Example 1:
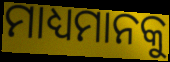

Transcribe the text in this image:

ମାଧ୍ଯମାନକୁ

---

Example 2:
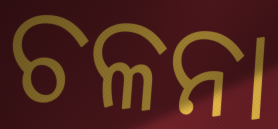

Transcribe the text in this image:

ଚଳନା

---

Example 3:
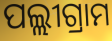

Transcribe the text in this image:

ପଲ୍ଲୀଗ୍ରାମ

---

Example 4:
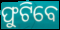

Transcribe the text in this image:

ଫୁଟିବେ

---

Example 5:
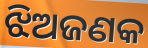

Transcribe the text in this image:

ଝିଅଜଣକ